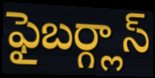
ఫైబర్గ్లాస్